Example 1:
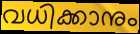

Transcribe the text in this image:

വധിക്കാനും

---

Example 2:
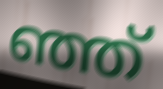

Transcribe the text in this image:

ഞ്ഞ്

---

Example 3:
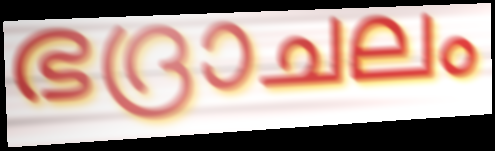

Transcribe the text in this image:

ഭദ്രാചലം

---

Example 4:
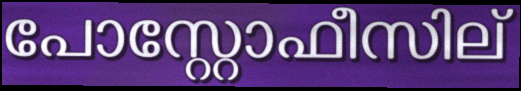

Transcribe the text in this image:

പോസ്റ്റോഫീസില്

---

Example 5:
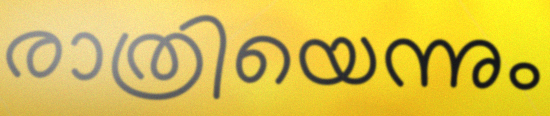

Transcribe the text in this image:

രാത്രിയെന്നും